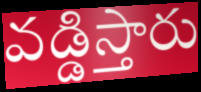
వడ్డిస్తారు